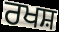
ਰਖਸ਼